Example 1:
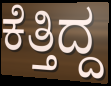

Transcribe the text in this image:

ಕೆತ್ತಿದ್ದ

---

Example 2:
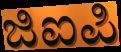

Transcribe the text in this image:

ಜಿಐಪಿ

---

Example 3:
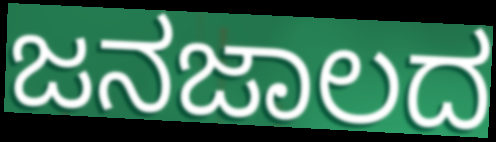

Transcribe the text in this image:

ಜನಜಾಲದ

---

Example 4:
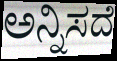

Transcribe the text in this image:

ಅನ್ನಿಸದೆ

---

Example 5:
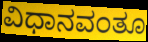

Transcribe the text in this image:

ವಿಧಾನವಂತೂ